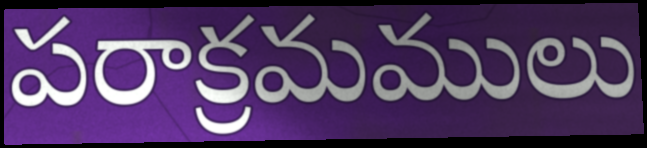
పరాక్రమములు